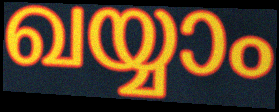
ഖയ്യാം